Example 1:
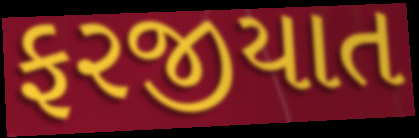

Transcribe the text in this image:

ફરજીયાત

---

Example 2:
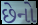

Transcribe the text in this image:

છેનો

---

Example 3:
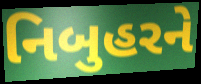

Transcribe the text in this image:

નિબુહરને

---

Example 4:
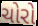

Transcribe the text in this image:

ચોરો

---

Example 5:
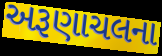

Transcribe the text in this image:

અરૂણાચલના